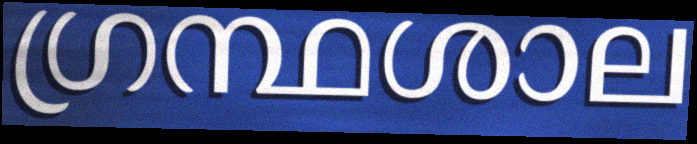
ഗ്രന്ഥശാല